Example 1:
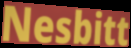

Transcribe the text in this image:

Nesbitt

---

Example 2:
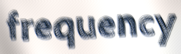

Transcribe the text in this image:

frequency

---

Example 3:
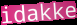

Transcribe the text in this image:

idakke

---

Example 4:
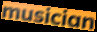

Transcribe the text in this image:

musician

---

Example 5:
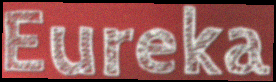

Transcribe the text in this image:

Eureka